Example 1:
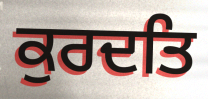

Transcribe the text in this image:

ਕੁਰਦਤਿ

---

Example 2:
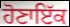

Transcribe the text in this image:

ਹੋਣਾਇੱਕ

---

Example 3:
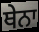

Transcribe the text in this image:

ਥੇਨਾ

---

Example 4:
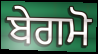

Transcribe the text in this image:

ਬੇਗਮੋ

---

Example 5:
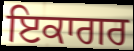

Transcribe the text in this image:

ਇਕਾਗਰ